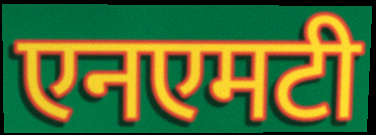
एनएमटी